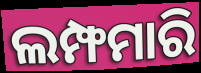
ଲମ୍ଫମାରି